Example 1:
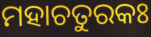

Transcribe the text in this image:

ମହାଚତୁରକଃ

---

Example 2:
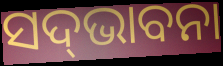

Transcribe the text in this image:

ସଦ୍‌ଭାବନା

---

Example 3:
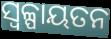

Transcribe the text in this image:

ସ୍ୱଳ୍ପାୟତନ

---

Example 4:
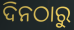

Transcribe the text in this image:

ଦିନଠାରୁ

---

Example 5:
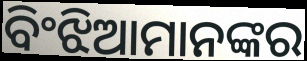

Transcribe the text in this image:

ବିଂଝିଆମାନଙ୍କର